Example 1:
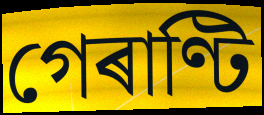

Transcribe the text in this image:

গেৰাণ্টি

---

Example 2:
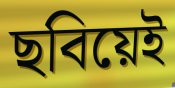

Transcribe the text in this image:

ছবিয়েই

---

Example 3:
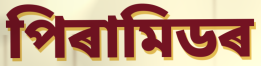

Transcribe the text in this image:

পিৰামিডৰ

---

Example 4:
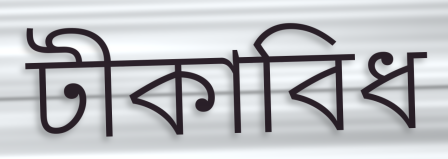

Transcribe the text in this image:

টীকাবিধ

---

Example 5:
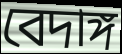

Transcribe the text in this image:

বেদাঙ্গ